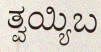
ತ್ವಯ್ಯಿಬ